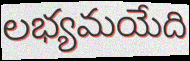
లభ్యమయేది